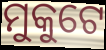
ମୁକୁଟେ